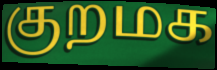
குறமக